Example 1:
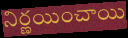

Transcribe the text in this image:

నిర్ణయించాయి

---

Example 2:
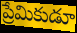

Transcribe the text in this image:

ప్రేమికుడూ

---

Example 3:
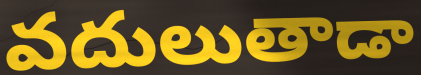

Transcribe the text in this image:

వదులుతాడా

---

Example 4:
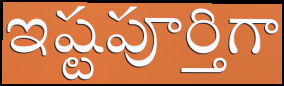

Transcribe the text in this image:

ఇష్టపూర్తిగా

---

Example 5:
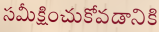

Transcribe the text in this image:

సమీక్షించుకోవడానికి